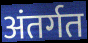
अंतर्गत